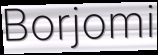
Borjomi